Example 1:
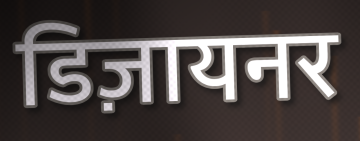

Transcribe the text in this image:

डिज़ायनर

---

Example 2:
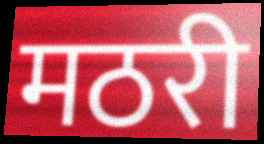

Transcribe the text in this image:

मठरी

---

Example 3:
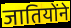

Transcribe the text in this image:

जातियोंने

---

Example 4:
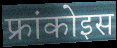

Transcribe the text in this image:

फ्रांकोइस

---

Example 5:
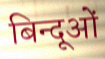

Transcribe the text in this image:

बिन्दूओं